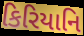
કિરિયાનિ